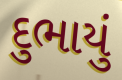
દુભાયું